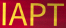
IAPT